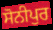
ਸੋਨੀਪੁਰ